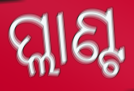
ପ୍ଲାଣ୍ଟ